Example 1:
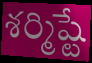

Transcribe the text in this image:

శర్మిష్టే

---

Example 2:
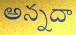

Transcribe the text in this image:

అన్నదా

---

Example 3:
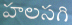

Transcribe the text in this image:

హలసగి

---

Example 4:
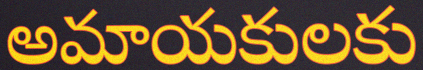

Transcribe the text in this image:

అమాయకులకు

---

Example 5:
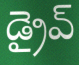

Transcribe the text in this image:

డ్రైవ్